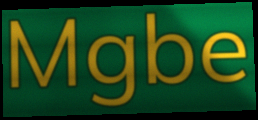
Mgbe